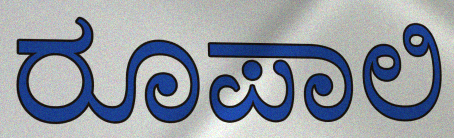
ರೂಪಾಲಿ